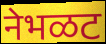
नेभळट